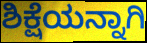
ಶಿಕ್ಷೆಯನ್ನಾಗಿ